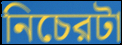
নিচেরটা